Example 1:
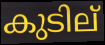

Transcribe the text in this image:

കുടില്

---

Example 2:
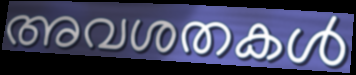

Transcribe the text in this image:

അവശതകൾ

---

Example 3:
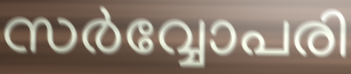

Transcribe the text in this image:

സർവ്വോപരി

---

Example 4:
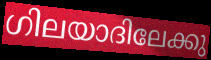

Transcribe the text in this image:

ഗിലയാദിലേക്കു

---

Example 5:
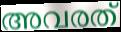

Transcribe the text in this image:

അവരത്